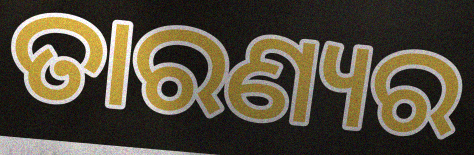
ତାରଣ୍ୟର